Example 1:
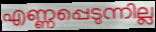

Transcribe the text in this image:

എണ്ണപ്പെടുന്നില്ല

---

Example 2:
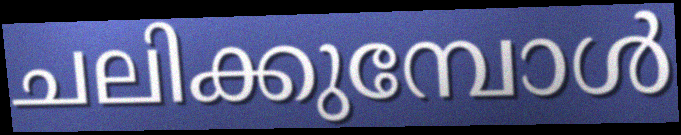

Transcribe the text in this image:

ചലിക്കുമ്പോൾ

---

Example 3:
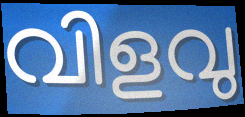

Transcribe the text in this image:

വിളവു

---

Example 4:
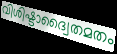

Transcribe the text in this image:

വിശിഷ്ടാദ്വൈതമതം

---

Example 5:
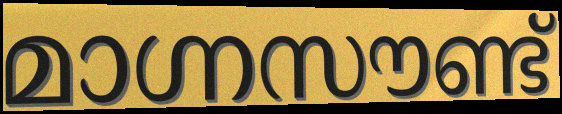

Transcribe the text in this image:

മാഗ്നസൗണ്ട്